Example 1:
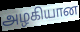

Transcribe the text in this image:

அழகியான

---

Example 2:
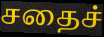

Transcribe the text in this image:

சதைச்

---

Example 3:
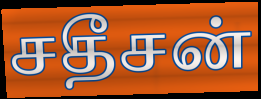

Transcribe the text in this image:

சதீசன்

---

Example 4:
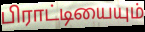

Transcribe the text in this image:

பிராட்டியையும்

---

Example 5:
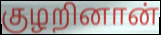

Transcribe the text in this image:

குழறினான்